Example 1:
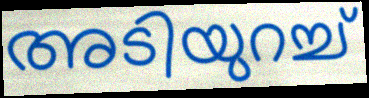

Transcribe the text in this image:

അടിയുറച്ച്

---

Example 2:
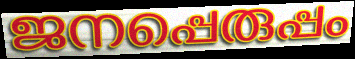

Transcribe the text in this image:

ജനപ്പെരുപ്പം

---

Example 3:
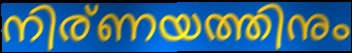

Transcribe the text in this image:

നിര്ണയത്തിനും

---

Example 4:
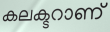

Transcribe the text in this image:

കലക്ടറാണ്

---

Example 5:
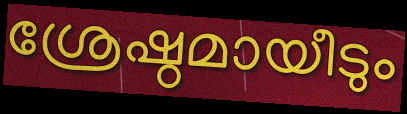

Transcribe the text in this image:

ശ്രേഷ്ഠമായീടും